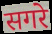
सगरे